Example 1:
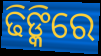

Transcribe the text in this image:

ଢିଙ୍କିରେ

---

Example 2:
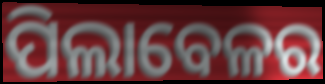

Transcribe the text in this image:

ପିଲାବେଳର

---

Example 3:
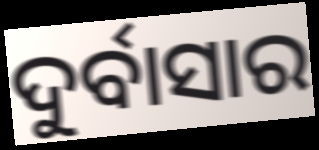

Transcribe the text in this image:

ଦୁର୍ବାସାର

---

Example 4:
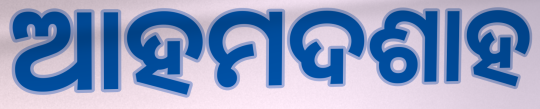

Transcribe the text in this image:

ଆହମଦଶାହ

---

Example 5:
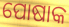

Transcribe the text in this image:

ପୋଷାକ